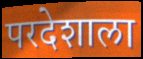
परदेशाला